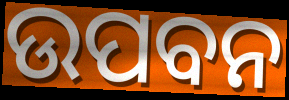
ଉପବନ